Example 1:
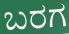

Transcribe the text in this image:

ಬರಗ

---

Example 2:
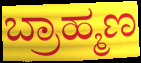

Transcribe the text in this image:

ಬ್ರಾಹ್ಮಣ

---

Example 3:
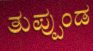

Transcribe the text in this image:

ತುಪ್ಪುಂಡ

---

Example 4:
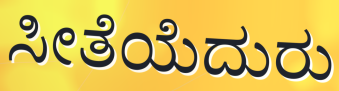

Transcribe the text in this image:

ಸೀತೆಯೆದುರು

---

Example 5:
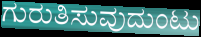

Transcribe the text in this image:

ಗುರುತಿಸುವುದುಂಟು